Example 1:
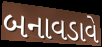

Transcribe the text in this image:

બનાવડાવે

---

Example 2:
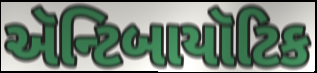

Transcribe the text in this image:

ઍન્ટિબાયૉટિક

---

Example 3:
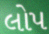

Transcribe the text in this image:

લોપ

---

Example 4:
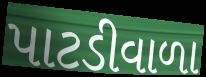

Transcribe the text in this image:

પાટડીવાળા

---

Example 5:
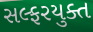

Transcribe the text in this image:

સલ્ફરયુક્ત